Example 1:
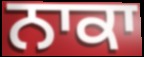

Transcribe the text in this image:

ਨਾਕਾ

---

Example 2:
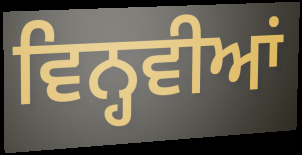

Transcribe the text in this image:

ਵਿਨ੍ਹਵੀਆਂ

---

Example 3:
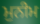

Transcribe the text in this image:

ਮੁਨੀਮ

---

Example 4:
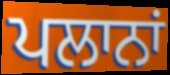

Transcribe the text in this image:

ਪਲਾਨਾਂ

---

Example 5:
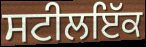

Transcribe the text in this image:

ਸਟੀਲਇੱਕ